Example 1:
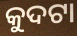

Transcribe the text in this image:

କୁଦଟା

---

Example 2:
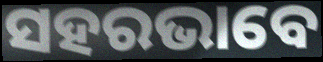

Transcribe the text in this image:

ସହରଭାବେ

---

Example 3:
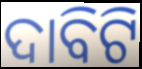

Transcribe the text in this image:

ଦାବିଟି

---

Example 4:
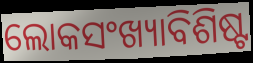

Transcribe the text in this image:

ଲୋକସଂଖ୍ୟାବିଶିଷ୍ଟ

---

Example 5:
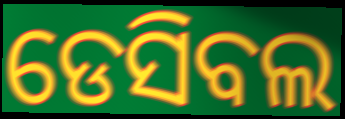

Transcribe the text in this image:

ଡେସିବଲ